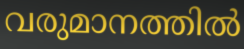
വരുമാനത്തിൽ